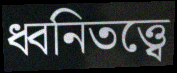
ধ্বনিতত্ত্বে